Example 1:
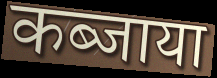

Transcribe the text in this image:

कब्जाया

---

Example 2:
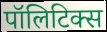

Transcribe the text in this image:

पॉलिटिक्स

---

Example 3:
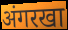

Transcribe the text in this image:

अंगरखा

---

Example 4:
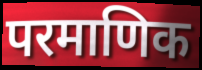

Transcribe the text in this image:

परमाणिक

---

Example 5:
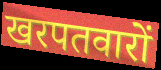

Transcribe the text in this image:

खरपतवारों